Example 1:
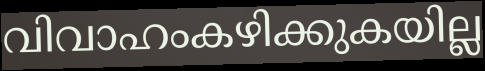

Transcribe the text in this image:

വിവാഹംകഴിക്കുകയില്ല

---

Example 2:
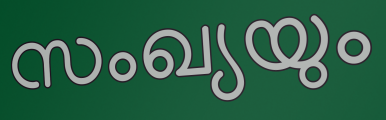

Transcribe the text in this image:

സംഖ്യയും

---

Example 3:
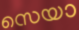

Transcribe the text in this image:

സെയാ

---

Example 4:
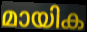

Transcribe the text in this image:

മായിക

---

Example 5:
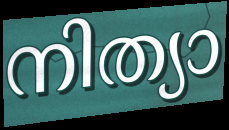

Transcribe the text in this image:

നിത്യാ